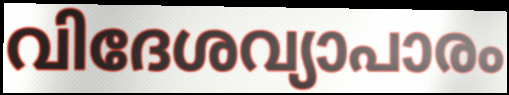
വിദേശവ്യാപാരം